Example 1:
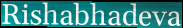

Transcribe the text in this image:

Rishabhadeva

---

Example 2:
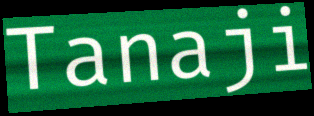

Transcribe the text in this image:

Tanaji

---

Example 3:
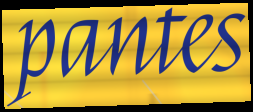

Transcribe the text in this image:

pantes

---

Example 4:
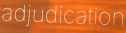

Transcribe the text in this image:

adjudication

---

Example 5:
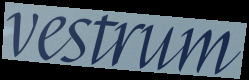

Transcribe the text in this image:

vestrum